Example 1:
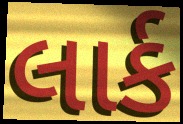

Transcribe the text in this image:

લાર્ક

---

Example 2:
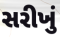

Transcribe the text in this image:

સરીખું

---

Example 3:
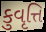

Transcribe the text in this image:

કુવૃત્તિ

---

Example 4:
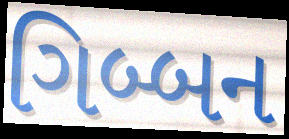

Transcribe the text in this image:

ગિબ્બન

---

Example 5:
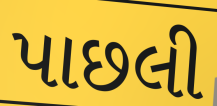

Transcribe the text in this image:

પાછલી